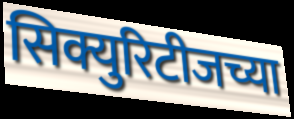
सिक्युरिटीजच्या